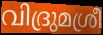
വിദ്രുമശ്രീ